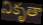
నికృతా